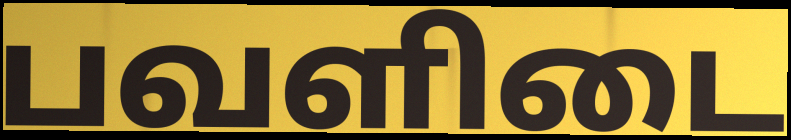
பவளிடை